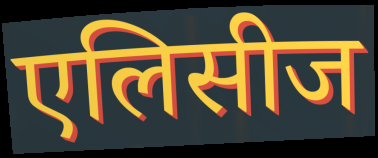
एलिसीज